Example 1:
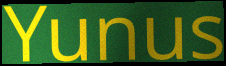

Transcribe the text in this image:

Yunus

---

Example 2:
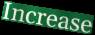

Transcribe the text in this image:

Increase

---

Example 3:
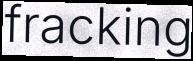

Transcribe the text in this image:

fracking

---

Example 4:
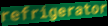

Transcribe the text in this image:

refrigerator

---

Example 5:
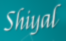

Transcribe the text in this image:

Shiyal